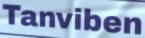
Tanviben